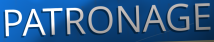
PATRONAGE